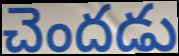
చెందడు